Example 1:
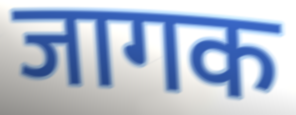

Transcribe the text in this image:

जागक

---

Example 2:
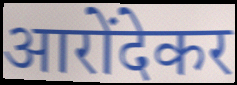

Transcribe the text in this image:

आरोंदेकर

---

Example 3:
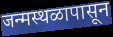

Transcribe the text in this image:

जन्मस्थळापासून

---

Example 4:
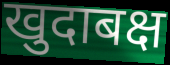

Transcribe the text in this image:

खुदाबक्ष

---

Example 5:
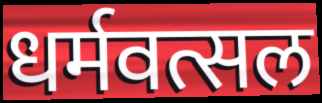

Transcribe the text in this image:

धर्मवत्सल